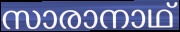
സാരാനാഥ്